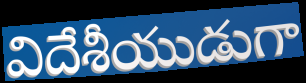
విదేశీయుడుగా